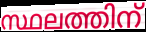
സ്ഥലത്തിന്